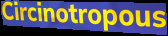
Circinotropous